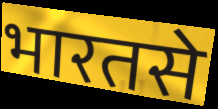
भारतसे